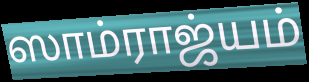
ஸாம்ராஜ்யம்